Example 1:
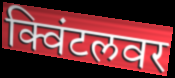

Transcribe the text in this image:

क्विंटलवर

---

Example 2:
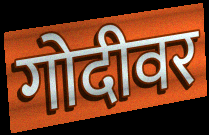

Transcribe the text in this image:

गोदीवर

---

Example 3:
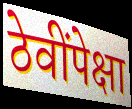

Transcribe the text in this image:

ठेवींपेक्षा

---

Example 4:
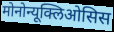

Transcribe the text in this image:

मोनोन्यूक्लिओसिस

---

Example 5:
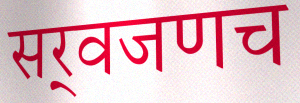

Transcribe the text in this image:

सर्वजणच